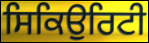
ਸਿਕਿਉਰਿਟੀ